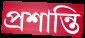
প্ৰশান্তি